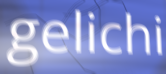
gelichi